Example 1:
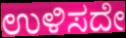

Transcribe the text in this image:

ಉಳಿಸದೇ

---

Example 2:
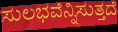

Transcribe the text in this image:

ಸುಲಭವೆನ್ನಿಸುತ್ತದೆ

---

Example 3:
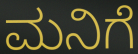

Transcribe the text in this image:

ಮನಿಗೆ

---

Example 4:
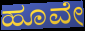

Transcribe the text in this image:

ಹೂವೇ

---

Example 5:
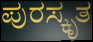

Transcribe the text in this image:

ಪುರಸ್ಕೃತ